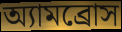
অ্যামব্রোস